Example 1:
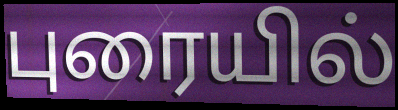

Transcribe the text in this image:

புரையில்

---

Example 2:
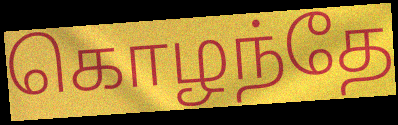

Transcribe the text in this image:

கொழந்தே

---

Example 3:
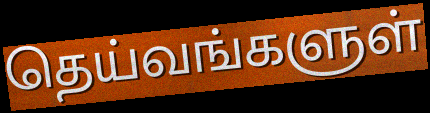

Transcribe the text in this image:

தெய்வங்களுள்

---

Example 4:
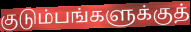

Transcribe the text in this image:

குடும்பங்களுக்குத்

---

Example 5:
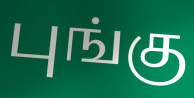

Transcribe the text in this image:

புங்கு